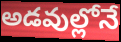
అడవుల్లోనే